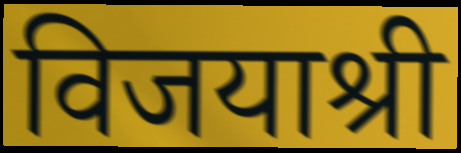
विजयाश्री